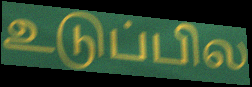
உடுப்பில